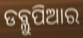
ଡବ୍ଲୁପିଆର